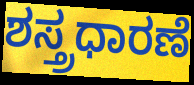
ಶಸ್ತ್ರಧಾರಣೆ